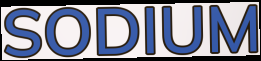
SODIUM